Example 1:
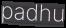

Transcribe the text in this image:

padhu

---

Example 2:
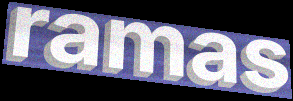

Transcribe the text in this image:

ramas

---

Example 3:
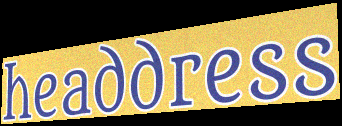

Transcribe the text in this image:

headdress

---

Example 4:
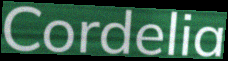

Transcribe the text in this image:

Cordelia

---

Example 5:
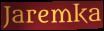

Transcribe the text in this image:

Jaremka